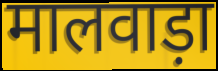
मालवाड़ा